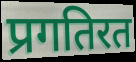
प्रगतिरत